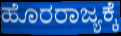
ಹೊರರಾಜ್ಯಕ್ಕೆ